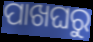
ପାଖଘରୁ